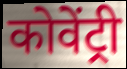
कोवेंट्री